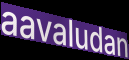
aavaludan